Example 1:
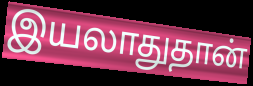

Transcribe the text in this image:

இயலாதுதான்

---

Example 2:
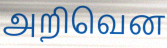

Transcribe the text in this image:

அறிவென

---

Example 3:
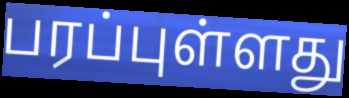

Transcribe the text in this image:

பரப்புள்ளது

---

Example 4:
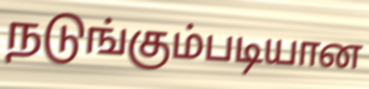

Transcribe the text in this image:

நடுங்கும்படியான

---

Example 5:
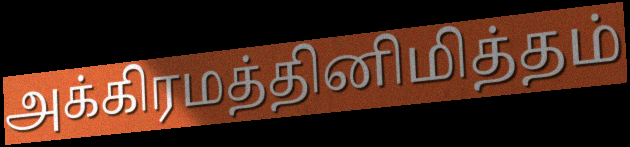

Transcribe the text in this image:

அக்கிரமத்தினிமித்தம்